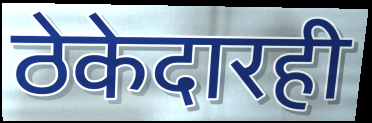
ठेकेदारही